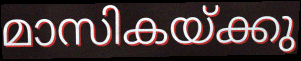
മാസികയ്ക്കു